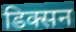
डिक्सन